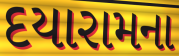
દયારામના